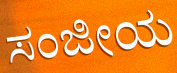
ಸಂಜೀಯ